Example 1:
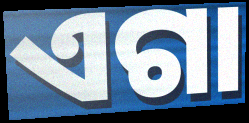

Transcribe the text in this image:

ଏଗା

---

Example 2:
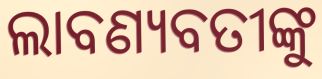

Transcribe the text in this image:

ଲାବଣ୍ୟବତୀଙ୍କୁ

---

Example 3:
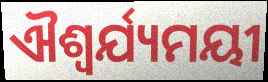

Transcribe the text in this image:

ଐଶ୍ୱର୍ଯ୍ୟମୟୀ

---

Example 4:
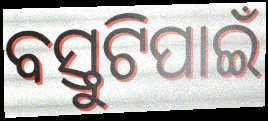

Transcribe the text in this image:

ବସ୍ତୁଟିପାଇଁ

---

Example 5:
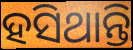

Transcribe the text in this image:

ହସିଥାନ୍ତି